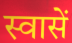
स्वासें